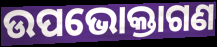
ଉପଭୋକ୍ତାଗଣ